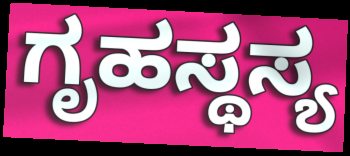
ಗೃಹಸ್ಥಸ್ಯ